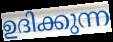
ഉദിക്കുന്ന